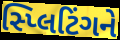
સ્પ્લિટિંગને